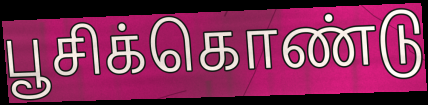
பூசிக்கொண்டு